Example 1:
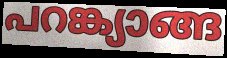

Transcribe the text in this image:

പറങ്ക്യാങ്ങ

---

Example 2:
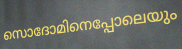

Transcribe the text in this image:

സൊദോമിനെപ്പോലെയും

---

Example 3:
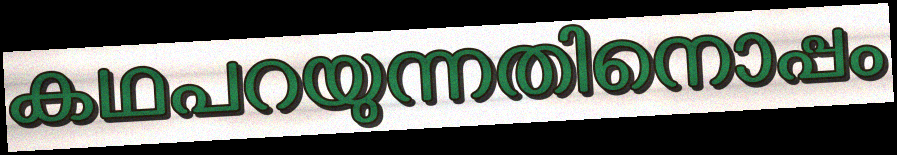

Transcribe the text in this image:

കഥപറയുന്നതിനൊപ്പം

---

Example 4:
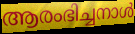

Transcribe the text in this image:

ആരംഭിച്ചനാൾ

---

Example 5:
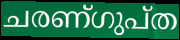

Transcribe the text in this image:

ചരണ്ഗുപ്ത